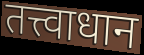
तत्त्वाधान